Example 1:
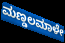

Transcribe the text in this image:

ಮಣ್ಡಲಮಾಳೇ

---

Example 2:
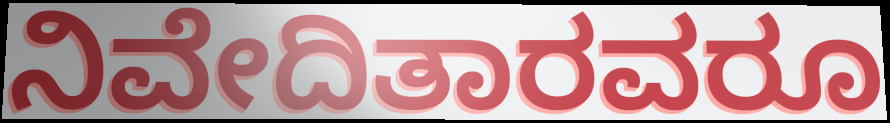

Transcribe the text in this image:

ನಿವೇದಿತಾರವರೂ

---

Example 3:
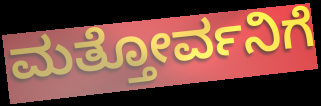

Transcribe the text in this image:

ಮತ್ತೋರ್ವನಿಗೆ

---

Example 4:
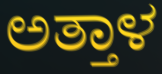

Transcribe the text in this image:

ಅತ್ತಾಳ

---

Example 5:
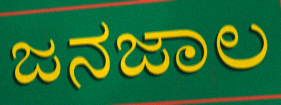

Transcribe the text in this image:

ಜನಜಾಲ